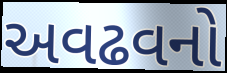
અવઢવનો